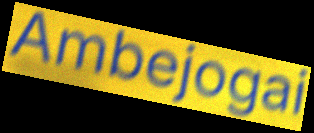
Ambejogai